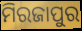
ମିରଜାପୁର